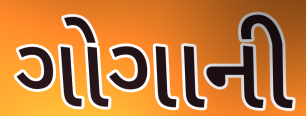
ગોગાની